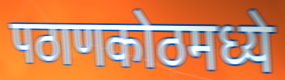
पठाणकोठमध्ये